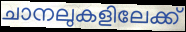
ചാനലുകളിലേക്ക്